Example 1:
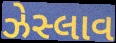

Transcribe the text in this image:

ઝેસ્લાવ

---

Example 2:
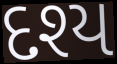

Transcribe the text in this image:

દશ્ય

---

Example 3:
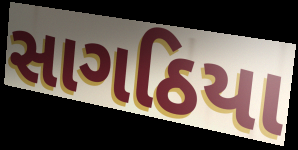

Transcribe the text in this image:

સાગઠિયા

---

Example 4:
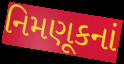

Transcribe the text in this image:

નિમણૂકનાં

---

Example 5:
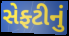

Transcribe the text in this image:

સેફ્ટીનું